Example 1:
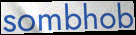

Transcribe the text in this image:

sombhob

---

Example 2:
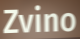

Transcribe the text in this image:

Zvino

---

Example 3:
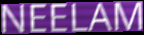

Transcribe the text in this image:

NEELAM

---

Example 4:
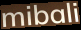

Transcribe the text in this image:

mibali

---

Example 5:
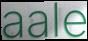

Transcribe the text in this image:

aale